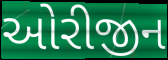
ઓરીજીન